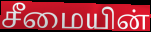
சீமையின்